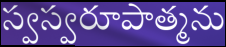
స్వస్వరూపాత్మను